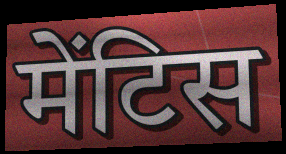
मेंटिस